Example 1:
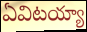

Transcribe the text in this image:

ఏవిటయ్యా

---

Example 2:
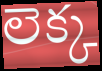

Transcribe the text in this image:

లెక్క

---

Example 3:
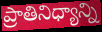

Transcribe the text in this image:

ప్రాతినిధ్యాన్ని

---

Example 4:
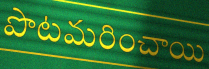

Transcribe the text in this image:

పొటమరించాయి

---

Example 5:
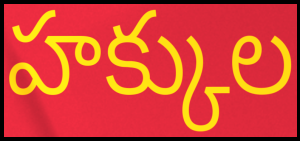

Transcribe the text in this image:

హక్కుల